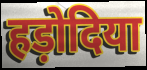
हड़ोदिया